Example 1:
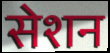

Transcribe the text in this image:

सेशन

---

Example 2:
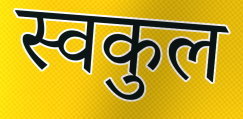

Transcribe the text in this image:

स्वकुल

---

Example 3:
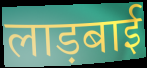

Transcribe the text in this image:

लाड़बाई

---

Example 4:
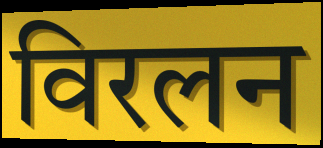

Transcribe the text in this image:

विरलन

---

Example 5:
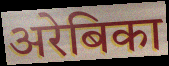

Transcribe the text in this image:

अरेबिका